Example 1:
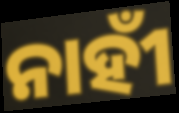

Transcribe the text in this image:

ନାହୀଁ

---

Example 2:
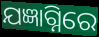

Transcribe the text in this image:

ଯଜ୍ଞାଗ୍ନିରେ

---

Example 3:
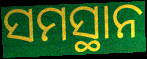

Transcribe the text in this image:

ସମସ୍ଥାନ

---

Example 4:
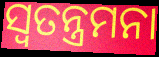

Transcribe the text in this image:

ସ୍ୱତନ୍ତ୍ରମନା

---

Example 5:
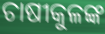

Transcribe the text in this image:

ଚାଷୀକୁଳଙ୍କ